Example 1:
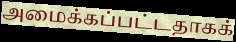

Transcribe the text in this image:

அமைக்கப்பட்டதாகக்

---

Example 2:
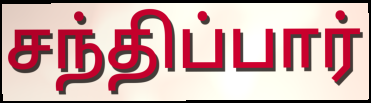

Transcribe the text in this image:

சந்திப்பார்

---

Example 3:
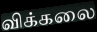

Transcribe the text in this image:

விக்கலை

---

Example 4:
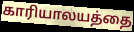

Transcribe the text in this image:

காரியாலயத்தை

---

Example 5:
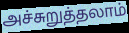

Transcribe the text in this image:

அச்சுறுத்தலாம்